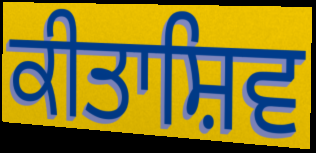
ਕੀਤਾਸ਼ਿਵ